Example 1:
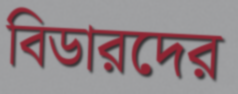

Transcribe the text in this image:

বিডারদের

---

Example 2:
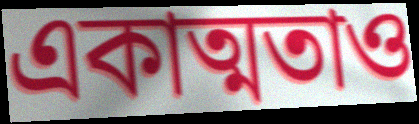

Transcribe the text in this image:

একাত্মতাও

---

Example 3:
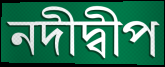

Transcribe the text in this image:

নদীদ্বীপ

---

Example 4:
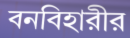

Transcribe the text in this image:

বনবিহারীর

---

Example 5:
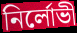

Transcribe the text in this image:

নির্লোভী